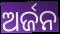
ଅର୍ଜନ